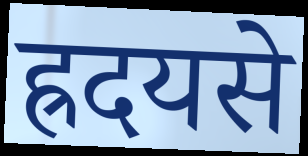
ह्रदयसे